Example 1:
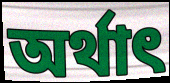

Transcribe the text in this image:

অৰ্থাৎ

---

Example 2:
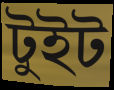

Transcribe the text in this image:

টুইট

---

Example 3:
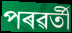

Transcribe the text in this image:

পৰৱৰ্তী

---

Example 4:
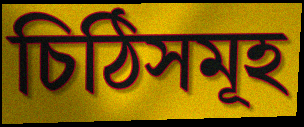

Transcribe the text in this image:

চিঠিসমূহ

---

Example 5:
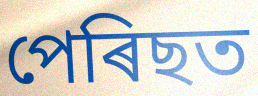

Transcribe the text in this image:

পেৰিছত